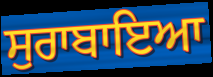
ਸੁਰਾਬਾਇਆ